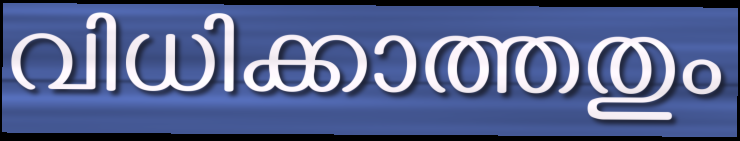
വിധിക്കാത്തതും